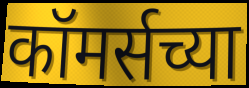
कॉमर्सच्या